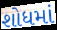
શોધમાં